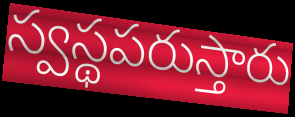
స్వస్థపరుస్తారు